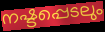
നഷ്ടപ്പെടലും